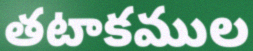
తటాకముల